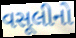
વસૂલીનો